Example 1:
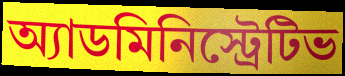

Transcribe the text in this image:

অ্যাডমিনিস্ট্রেটিভ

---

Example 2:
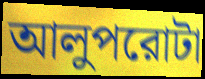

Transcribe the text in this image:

আলুপরোটা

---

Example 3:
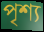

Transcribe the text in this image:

পৃশ্য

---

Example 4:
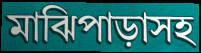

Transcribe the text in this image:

মাঝিপাড়াসহ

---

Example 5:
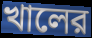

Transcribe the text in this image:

খালের